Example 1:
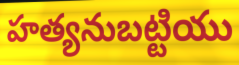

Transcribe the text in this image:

హత్యనుబట్టియు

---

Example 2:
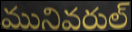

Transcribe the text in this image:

మునివరుల్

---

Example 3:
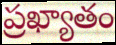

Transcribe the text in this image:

ప్రఖ్యాతం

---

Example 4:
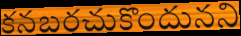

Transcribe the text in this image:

కనబరచుకొందునని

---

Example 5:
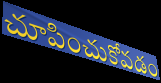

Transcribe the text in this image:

చూపించుకోవడం